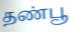
தண்பூ